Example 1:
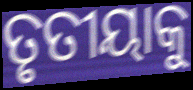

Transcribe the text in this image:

ତୃତୀୟାକୁ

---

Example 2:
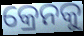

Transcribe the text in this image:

କ୍ରେନକୁ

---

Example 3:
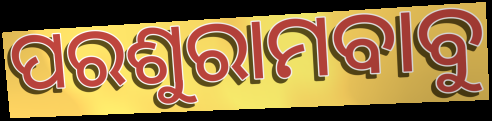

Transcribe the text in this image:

ପରଶୁରାମବାବୁ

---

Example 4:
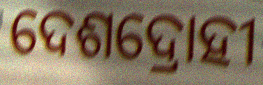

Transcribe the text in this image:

ଦେଶଦ୍ରୋହୀ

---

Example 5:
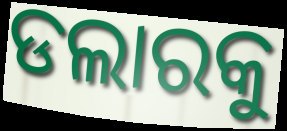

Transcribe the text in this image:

ଡଲାରକୁ